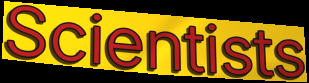
Scientists